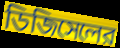
ডিজিসেলের